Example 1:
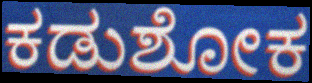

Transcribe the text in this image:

ಕಡುಶೋಕ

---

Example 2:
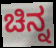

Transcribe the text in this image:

ಚಿನ್ನ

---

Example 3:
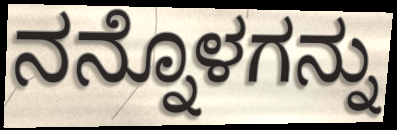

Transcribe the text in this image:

ನನ್ನೊಳಗನ್ನು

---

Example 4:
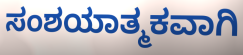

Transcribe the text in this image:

ಸಂಶಯಾತ್ಮಕವಾಗಿ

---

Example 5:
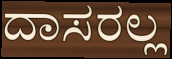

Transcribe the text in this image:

ದಾಸರಲ್ಲ